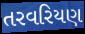
તરવરિયણ